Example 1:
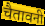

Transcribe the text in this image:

चैतावनी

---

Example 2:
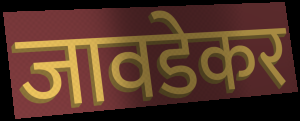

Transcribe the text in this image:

जावडेकर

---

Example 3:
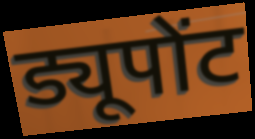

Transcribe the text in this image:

ड्यूपोंट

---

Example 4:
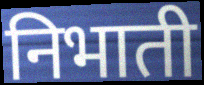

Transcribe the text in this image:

निभाती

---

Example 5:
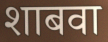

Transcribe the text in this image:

शाबवा